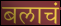
बलाचं